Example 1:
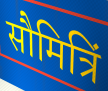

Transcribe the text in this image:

सौमित्रिं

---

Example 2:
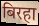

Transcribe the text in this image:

बिरहा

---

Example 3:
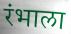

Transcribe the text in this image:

रंभाला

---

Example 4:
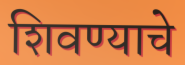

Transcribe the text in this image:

शिवण्याचे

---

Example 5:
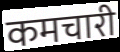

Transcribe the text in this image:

कमचारी